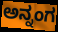
ಅನ್ನಂಗ